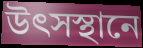
উৎসস্থানে